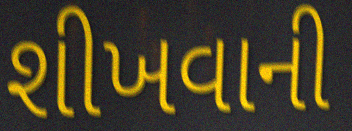
શીખવાની